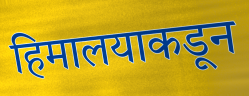
हिमालयाकडून